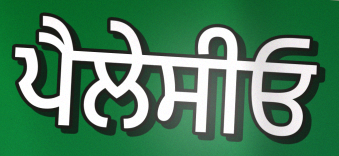
ਪੈਲੇਸੀਓ